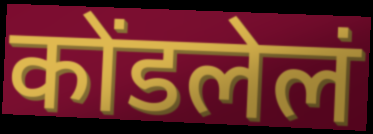
कोंडलेलं